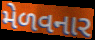
મેળવનાર